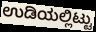
ಉಡಿಯಲ್ಲಿಟ್ಟು